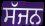
ਸੱਜਨ